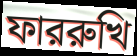
ফাররুখি